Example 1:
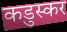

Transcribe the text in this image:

कडुस्कर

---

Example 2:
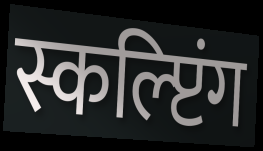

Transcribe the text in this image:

स्कल्प्टिंग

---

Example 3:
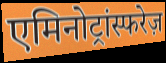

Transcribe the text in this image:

एमिनोट्रांस्फरेज़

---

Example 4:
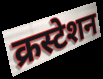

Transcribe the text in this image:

क्रस्टेशन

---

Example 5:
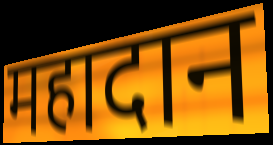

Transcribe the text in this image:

महादान